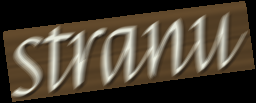
stranu